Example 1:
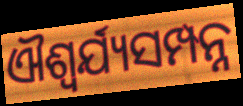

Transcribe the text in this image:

ଐଶ୍ୱର୍ଯ୍ୟସମ୍ପନ୍ନ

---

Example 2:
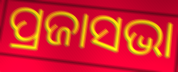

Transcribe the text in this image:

ପ୍ରଜାସଭା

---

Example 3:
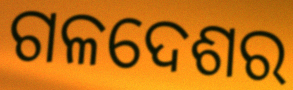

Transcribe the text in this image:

ଗଳଦେଶର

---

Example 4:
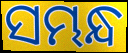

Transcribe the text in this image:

ସମ୍ଭନ୍ଧ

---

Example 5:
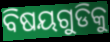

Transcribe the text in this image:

ବିଷୟଗୁଡିକୁ